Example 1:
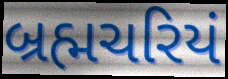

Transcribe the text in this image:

બ્રહ્મચરિયં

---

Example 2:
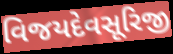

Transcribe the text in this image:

વિજયદેવસૂરિજી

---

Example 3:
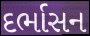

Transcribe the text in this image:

દર્ભાસન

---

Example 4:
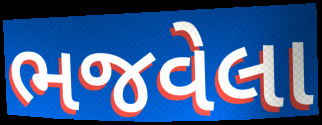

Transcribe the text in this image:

ભજવેલા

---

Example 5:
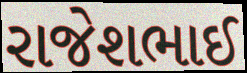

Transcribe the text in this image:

રાજેશભાઈ